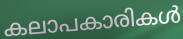
കലാപകാരികൾ